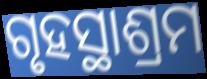
ଗୃହସ୍ଥାଶ୍ରମ